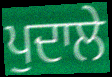
ਪੁਦਾਲੇ